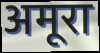
अमूरा